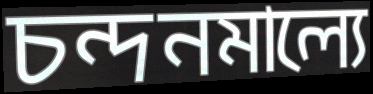
চন্দনমাল্যে